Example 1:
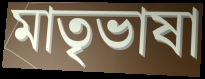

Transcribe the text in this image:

মাতৃভাষা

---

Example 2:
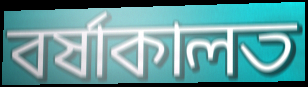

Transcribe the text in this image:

বৰ্ষাকালত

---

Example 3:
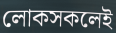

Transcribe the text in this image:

লোকসকলেই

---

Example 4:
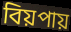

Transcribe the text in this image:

বিয়পায়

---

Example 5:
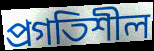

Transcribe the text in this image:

প্ৰগতিশীল